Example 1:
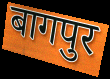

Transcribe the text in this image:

बागपुर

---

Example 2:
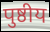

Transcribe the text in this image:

पुष्ठीय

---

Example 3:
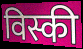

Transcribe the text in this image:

विस्की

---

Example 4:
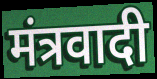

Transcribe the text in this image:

मंत्रवादी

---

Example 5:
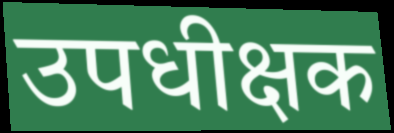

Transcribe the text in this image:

उपधीक्षक